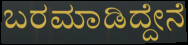
ಬರಮಾಡಿದ್ದೇನೆ